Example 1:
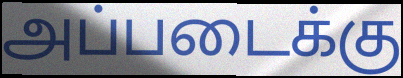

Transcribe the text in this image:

அப்படைக்கு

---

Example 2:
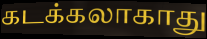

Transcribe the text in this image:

கடக்கலாகாது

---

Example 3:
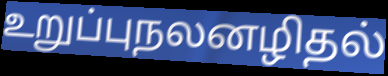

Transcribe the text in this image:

உறுப்புநலனழிதல்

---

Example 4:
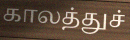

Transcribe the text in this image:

காலத்துச்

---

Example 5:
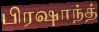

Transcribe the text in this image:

பிரஷாந்த்